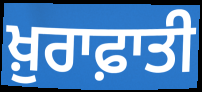
ਖ਼ੁਰਾਫ਼ਾਤੀ